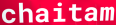
chaitam